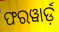
ଫରୱାର୍ଡ଼